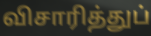
விசாரித்துப்